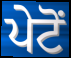
ਪੇਟੋਂ